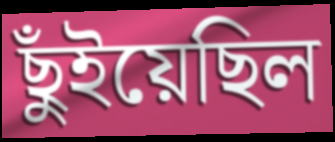
ছুঁইয়েছিল